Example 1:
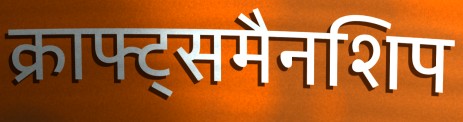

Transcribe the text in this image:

क्राफ्ट्समैनशिप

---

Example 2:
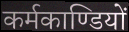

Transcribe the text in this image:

कर्मकाण्डियों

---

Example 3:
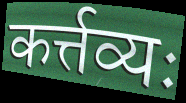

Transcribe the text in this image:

कर्त्तव्यः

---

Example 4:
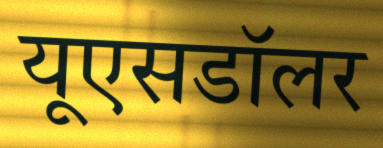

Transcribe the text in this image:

यूएसडॉलर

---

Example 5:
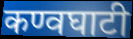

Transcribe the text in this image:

कण्वघाटी